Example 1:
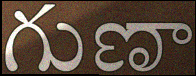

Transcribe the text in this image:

గుణా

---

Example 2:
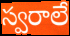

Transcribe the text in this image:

స్వరాలే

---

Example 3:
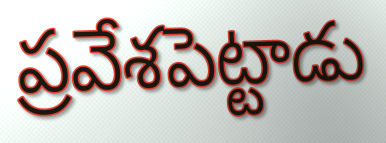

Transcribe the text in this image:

ప్రవేశపెట్టాడు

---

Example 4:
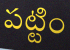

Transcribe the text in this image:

పట్టిం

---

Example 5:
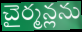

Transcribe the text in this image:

చైర్మన్లను